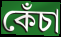
কেঁচা